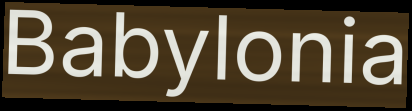
Babylonia